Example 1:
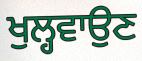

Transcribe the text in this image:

ਖੁਲ੍ਹਵਾਉਣ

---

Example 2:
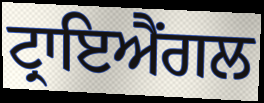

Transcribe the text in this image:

ਟ੍ਰਾਇਐਂਗਲ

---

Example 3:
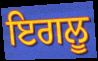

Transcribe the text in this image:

ਇਗਲੂ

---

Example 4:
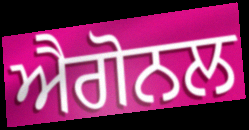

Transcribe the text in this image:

ਐਗੋਨਲ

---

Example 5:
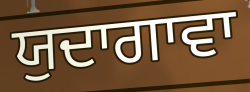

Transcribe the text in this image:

ਯੁਦਾਗਾਵਾ